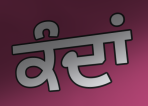
ਕੰਦਾਂ